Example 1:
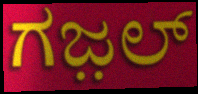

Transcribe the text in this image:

ಗಜ಼ಲ್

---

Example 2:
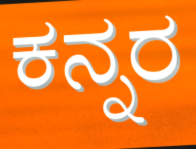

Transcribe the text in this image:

ಕನ್ನರ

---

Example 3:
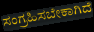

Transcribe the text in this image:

ಸಂಗ್ರಹಿಸಬೇಕಾಗಿದೆ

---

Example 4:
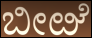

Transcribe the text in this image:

ಬೀೞೆ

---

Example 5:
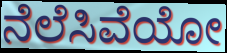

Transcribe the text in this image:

ನೆಲೆಸಿವೆಯೋ